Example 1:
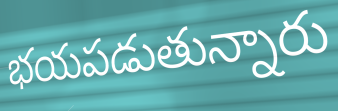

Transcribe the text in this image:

భయపడుతున్నారు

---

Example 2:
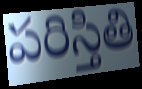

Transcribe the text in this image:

పరిస్తితి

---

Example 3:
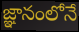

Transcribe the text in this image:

జ్ఞానంలోనే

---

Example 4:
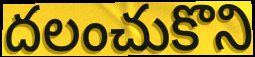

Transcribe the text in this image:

దలంచుకొని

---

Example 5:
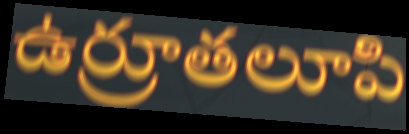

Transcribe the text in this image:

ఉర్రూతలూపి